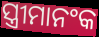
ସ୍ତ୍ରୀମାନଂକ